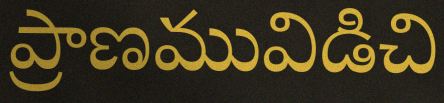
ప్రాణమువిడిచి